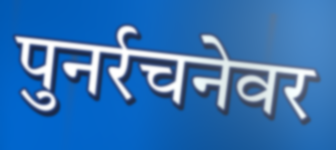
पुनर्रचनेवर